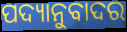
ପଦ୍ୟାନୁବାଦର